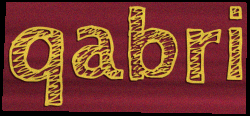
qabri